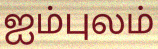
ஐம்புலம்